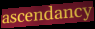
ascendancy